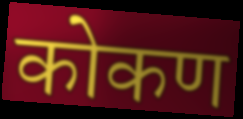
कोकण